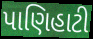
પાણિહાટી